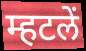
म्हटलें